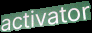
activator